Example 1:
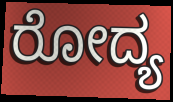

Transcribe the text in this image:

ರೋದ್ಯ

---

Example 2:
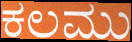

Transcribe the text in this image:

ಕಲಮು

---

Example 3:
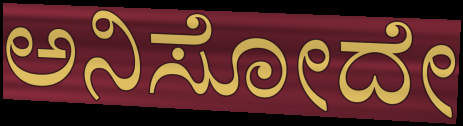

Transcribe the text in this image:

ಅನಿಸೋದೇ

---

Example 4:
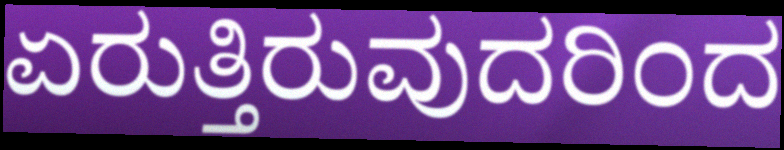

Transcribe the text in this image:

ಏರುತ್ತಿರುವುದರಿಂದ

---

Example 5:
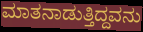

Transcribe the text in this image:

ಮಾತನಾಡುತ್ತಿದ್ದವನು